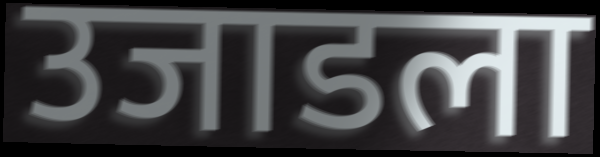
उजाडला